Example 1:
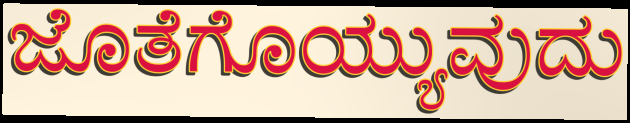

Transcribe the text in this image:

ಜೊತೆಗೊಯ್ಯುವುದು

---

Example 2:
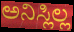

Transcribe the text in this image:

ಅನಿಸ್ಲಿಲ್ಲ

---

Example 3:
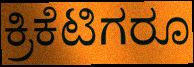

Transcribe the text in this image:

ಕ್ರಿಕೆಟಿಗರೂ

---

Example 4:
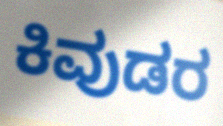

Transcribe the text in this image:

ಕಿವುಡರ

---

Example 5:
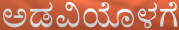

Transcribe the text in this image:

ಅಡವಿಯೊಳಗೆ